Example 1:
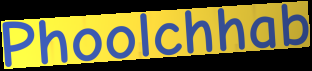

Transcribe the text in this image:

Phoolchhab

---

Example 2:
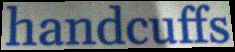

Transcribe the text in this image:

handcuffs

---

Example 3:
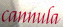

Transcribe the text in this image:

cannula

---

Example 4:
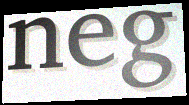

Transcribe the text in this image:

neg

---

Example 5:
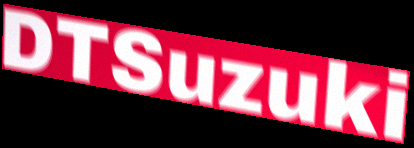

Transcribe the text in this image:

DTSuzuki